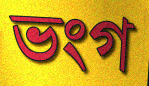
ভংগ